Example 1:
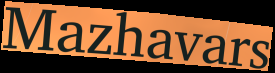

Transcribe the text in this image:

Mazhavars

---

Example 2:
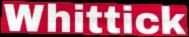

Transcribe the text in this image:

Whittick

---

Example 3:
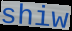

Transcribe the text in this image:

shiw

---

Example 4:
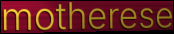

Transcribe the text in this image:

motherese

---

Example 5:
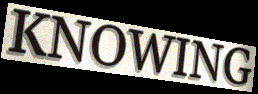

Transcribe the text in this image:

KNOWING